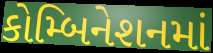
કોમ્બિનેશનમાં